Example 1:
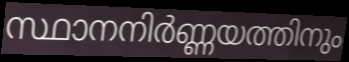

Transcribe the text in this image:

സ്ഥാനനിർണ്ണയത്തിനും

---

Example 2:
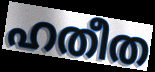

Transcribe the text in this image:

ഹതീത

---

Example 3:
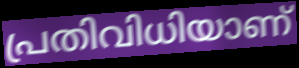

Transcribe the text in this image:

പ്രതിവിധിയാണ്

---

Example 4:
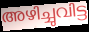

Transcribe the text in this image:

അഴിച്ചുവിട്ട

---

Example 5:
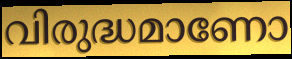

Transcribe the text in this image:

വിരുദ്ധമാണോ